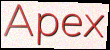
Apex